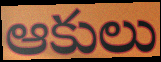
ఆకులు